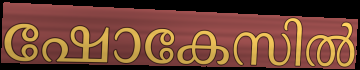
ഷോകേസിൽ